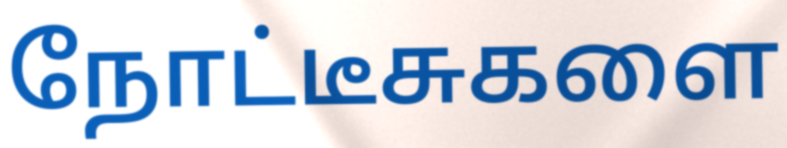
நோட்டீசுகளை